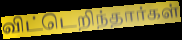
விட்டெறிந்தார்கள்